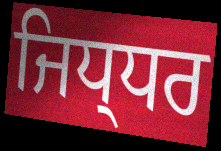
ਜਿਧ੍ਧਰ